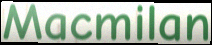
Macmilan